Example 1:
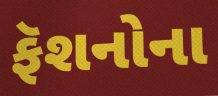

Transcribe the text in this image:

ફૅશનોના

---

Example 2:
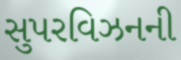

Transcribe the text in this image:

સુપરવિઝનની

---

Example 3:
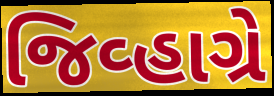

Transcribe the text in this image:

જિવ્હાગ્રે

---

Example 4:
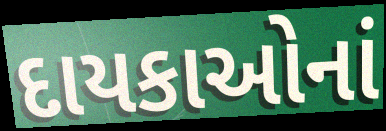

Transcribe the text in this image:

દાયકાઓનાં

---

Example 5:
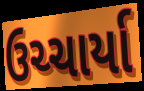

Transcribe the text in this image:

ઉચ્ચાર્યા